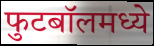
फुटबॉलमध्ये